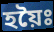
হয়ৈঃ